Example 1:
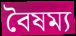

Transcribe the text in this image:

বৈষম্য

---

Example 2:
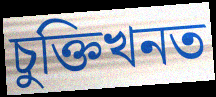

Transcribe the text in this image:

চুক্তিখনত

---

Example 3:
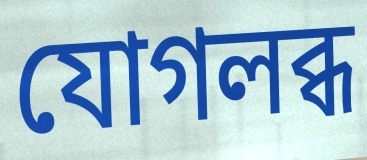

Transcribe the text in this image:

যোগলব্ধ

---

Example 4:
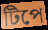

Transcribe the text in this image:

টিপে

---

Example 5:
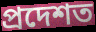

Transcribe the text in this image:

প্ৰদেশত